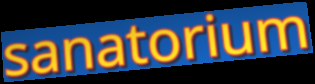
sanatorium